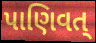
પાણિવત્